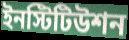
ইনস্টিটিউশন